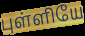
புள்ளியே